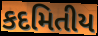
કદમિતીય